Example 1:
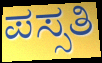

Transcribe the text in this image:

ಪಸ್ಸತಿ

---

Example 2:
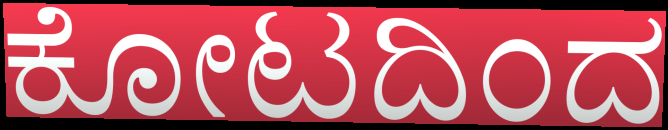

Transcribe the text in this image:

ಕೋಟದಿಂದ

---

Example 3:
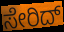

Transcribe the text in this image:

ಸೇರಿದ್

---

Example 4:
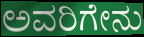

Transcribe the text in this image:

ಅವರಿಗೇನು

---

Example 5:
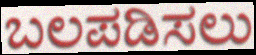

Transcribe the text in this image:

ಬಲಪಡಿಸಲು